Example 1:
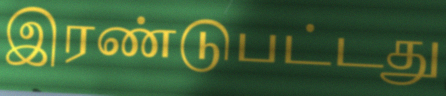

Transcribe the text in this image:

இரண்டுபட்டது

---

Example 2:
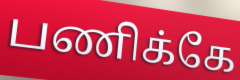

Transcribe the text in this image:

பணிக்கே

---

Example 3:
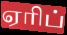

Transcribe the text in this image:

ஏரிப்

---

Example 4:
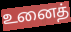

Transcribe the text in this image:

உனைத்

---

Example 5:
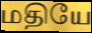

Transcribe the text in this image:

மதியே